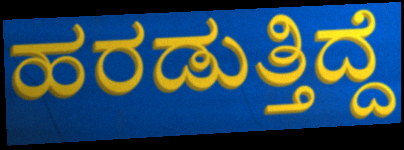
ಹರಡುತ್ತಿದ್ದೆ